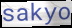
sakyo